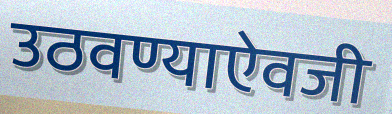
उठवण्याऐवजी